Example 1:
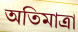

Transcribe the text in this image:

অতিমাত্ৰা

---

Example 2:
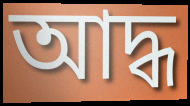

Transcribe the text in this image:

আদ্ধ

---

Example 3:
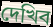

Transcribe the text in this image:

দেখিব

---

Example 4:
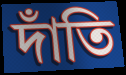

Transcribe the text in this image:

দাঁতি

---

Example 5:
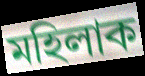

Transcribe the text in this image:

মহিলাক